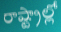
రాష్ట్రాల్లో